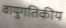
वायुगतिकीय